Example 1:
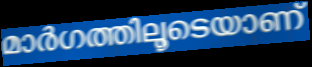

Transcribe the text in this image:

മാർഗത്തിലൂടെയാണ്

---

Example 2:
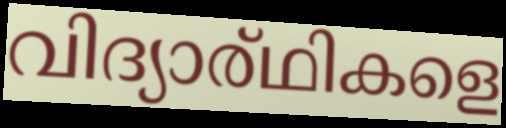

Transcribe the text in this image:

വിദ്യാര്ഥികളെ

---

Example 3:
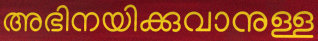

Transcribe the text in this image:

അഭിനയിക്കുവാനുള്ള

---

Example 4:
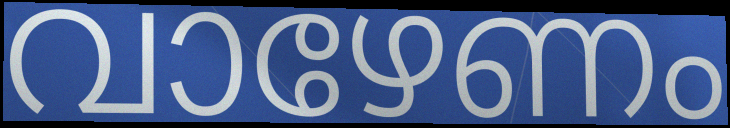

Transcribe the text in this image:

വാഴേണം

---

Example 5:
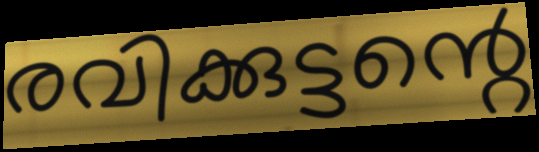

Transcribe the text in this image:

രവിക്കുട്ടന്റെ